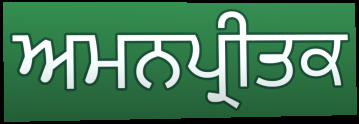
ਅਮਨਪ੍ਰੀਤਕ